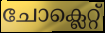
ചോക്ലെറ്റ്